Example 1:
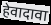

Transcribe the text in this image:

हेवादावा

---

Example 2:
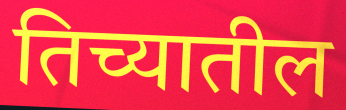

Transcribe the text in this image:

तिच्यातील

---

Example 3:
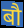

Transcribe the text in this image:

बौ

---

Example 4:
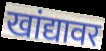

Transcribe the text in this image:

खांद्यावर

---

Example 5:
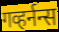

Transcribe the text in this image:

गव्हर्नन्स